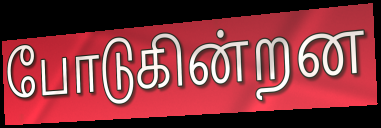
போடுகின்றன